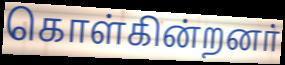
கொள்கின்றனர்